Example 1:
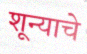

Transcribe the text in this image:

शून्याचे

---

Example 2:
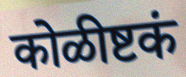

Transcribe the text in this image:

कोळीष्टकं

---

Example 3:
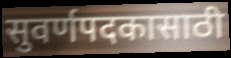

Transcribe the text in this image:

सुवर्णपदकासाठी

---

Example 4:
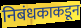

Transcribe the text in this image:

निबंधकाकडून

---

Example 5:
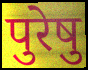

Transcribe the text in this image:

पुरेषु